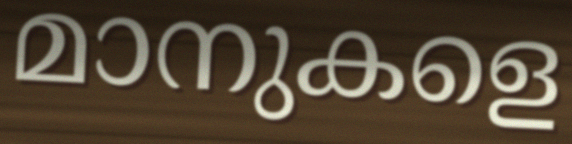
മാനുകളെ